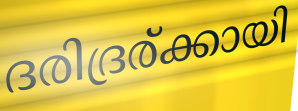
ദരിദ്രര്ക്കായി